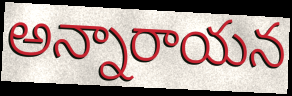
అన్నారాయన